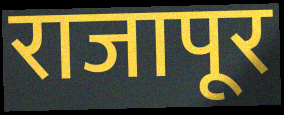
राजापूर